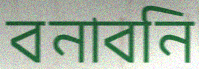
বনাবনি